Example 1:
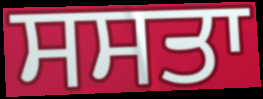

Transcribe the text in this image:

ਸਸਤਾ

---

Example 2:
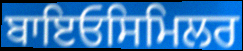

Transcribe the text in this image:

ਬਾਇਓਸਿਮਿਲਰ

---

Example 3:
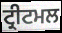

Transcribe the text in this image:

ਟ੍ਰੀਟਮਲ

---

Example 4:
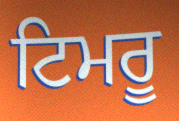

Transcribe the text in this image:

ਟਿਮਰੂ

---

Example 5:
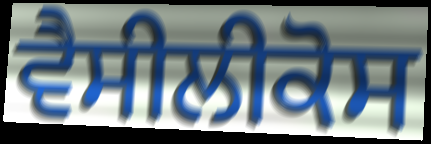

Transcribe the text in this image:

ਵੈਸੀਲੀਕੋਸ